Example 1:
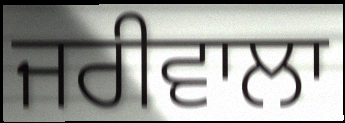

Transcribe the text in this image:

ਜਰੀਵਾਲਾ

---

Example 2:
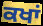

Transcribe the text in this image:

ਕਖਾਂ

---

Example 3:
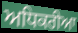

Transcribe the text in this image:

ਅਧਿਕਰੀਆ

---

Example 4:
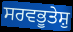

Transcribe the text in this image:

ਸਰਵਭੂਤੇਸ਼ੁ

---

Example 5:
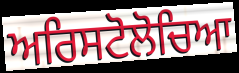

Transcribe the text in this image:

ਅਰਿਸਟੋਲੋਚਿਆ